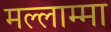
मल्लाम्मा